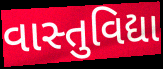
વાસ્તુવિદ્યા